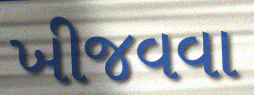
ખીજવવા